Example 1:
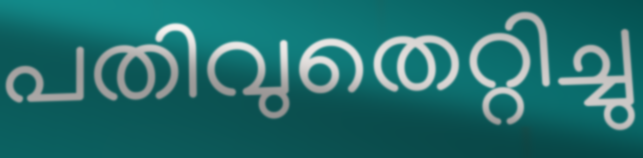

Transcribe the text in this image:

പതിവുതെറ്റിച്ചു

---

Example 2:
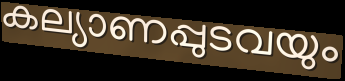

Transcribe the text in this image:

കല്യാണപ്പുടവയും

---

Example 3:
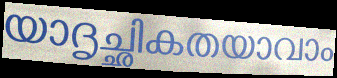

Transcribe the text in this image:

യാദൃച്ഛികതയാവാം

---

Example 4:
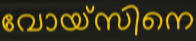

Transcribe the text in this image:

വോയ്സിനെ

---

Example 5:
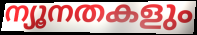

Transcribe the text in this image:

ന്യൂനതകളും